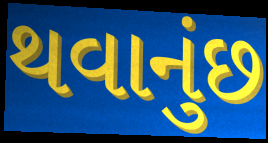
થવાનુંછ